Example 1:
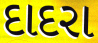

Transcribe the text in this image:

દાદરા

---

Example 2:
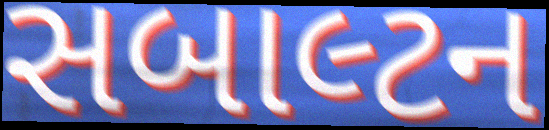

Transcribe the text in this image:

સબાલ્ટન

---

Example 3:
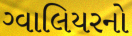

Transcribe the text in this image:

ગ્વાલિયરનો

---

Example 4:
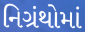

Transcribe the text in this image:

નિગ્રંથોમાં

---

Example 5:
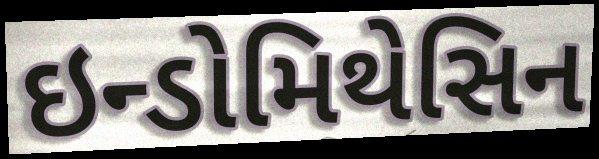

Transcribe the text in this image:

ઇન્ડોમિથેસિન